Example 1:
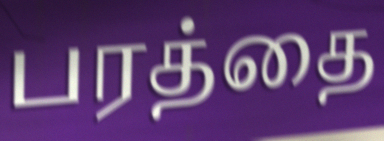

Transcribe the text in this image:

பரத்தை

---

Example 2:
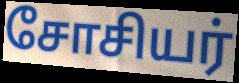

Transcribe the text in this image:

சோசியர்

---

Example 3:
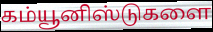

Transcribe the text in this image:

கம்யூனிஸ்டுகளை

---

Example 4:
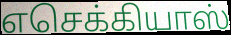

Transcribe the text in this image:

எசெக்கியாஸ்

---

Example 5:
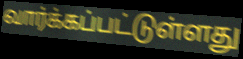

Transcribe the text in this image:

வார்க்கப்பட்டுள்ளது